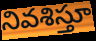
నివశిస్తూ